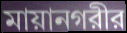
মায়ানগরীর